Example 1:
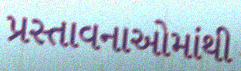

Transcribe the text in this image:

પ્રસ્તાવનાઓમાંથી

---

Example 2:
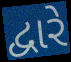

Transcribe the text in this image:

દ્વારે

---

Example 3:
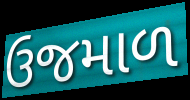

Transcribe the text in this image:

ઉજમાળ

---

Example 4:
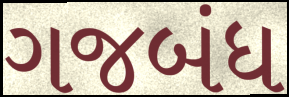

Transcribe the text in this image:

ગજબંધ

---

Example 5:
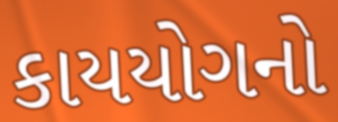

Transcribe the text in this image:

કાયયોગનો